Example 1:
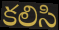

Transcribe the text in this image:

కలిసి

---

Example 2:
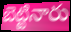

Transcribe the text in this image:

బెట్టినారు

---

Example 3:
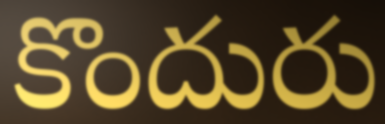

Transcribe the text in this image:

కొందురు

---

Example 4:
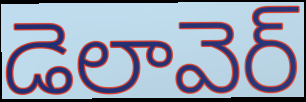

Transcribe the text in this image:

డెలావెర్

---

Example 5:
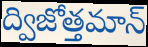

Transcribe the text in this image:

ద్విజోత్తమాన్